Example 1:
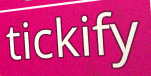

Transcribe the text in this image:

tickify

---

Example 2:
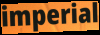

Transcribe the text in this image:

imperial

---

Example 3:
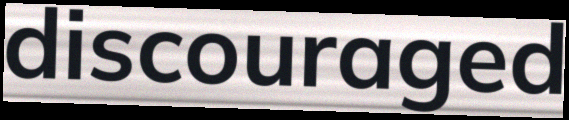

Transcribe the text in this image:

discouraged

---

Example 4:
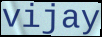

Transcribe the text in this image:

vijay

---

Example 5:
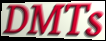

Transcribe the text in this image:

DMTs